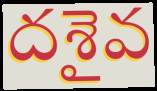
దశైవ